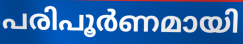
പരിപൂർണമായി